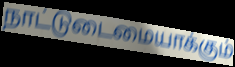
நாட்டுடைமையாக்கும்